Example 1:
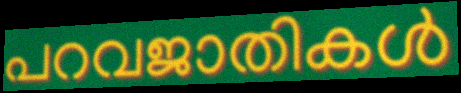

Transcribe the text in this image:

പറവജാതികൾ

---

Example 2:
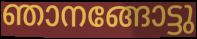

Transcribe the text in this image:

ഞാനങ്ങോട്ടു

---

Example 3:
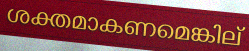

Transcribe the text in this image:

ശക്തമാകണമെങ്കില്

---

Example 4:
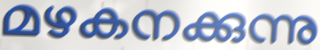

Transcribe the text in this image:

മഴകനക്കുന്നു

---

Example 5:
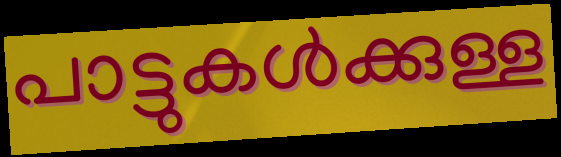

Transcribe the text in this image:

പാട്ടുകൾക്കുള്ള